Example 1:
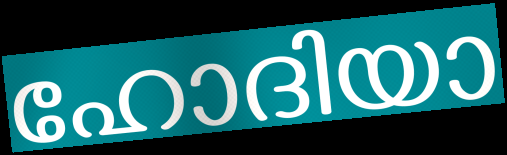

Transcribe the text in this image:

ഹോദിയാ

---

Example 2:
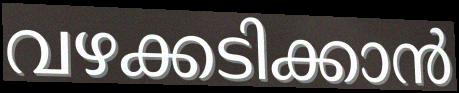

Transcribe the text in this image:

വഴക്കടിക്കാൻ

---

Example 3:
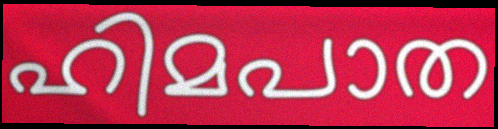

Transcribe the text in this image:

ഹിമപാത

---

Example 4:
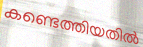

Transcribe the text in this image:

കണ്ടെത്തിയതിൽ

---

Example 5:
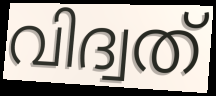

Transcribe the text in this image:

വിദ്വത്